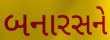
બનારસને